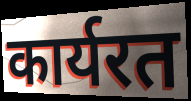
कार्यरत